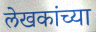
लेखकांच्या